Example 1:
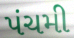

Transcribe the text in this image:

પંચમી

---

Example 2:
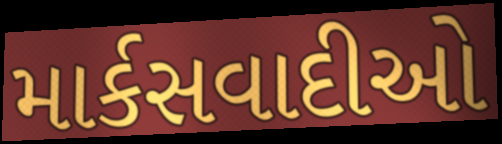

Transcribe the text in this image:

માર્કસવાદીઓ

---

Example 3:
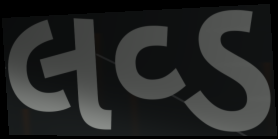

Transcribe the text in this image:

લવ્ડ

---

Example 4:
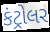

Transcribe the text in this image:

કંટ્રોલર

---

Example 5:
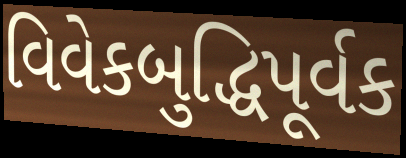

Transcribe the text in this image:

વિવેકબુદ્ધિપૂર્વક